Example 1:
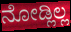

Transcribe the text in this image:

ನೋಡ್ಲಿಲ್ಲ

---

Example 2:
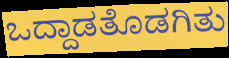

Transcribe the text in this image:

ಒದ್ದಾಡತೊಡಗಿತು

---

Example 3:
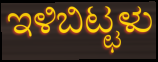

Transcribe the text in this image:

ಇಳಿಬಿಟ್ಟಳು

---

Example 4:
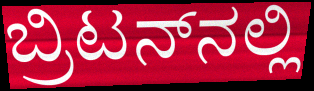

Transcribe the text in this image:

ಬ್ರಿಟನ್‌ನಲ್ಲಿ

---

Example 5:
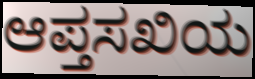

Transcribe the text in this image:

ಆಪ್ತಸಖಿಯ